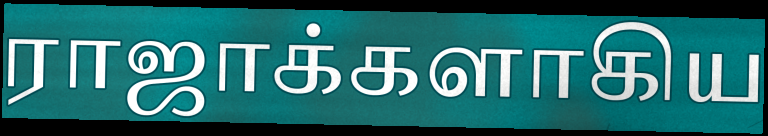
ராஜாக்களாகிய